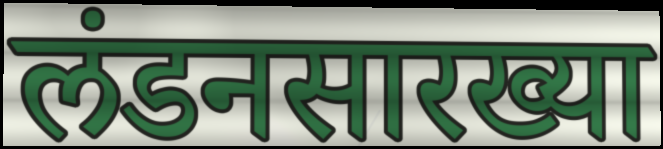
लंडनसारख्या